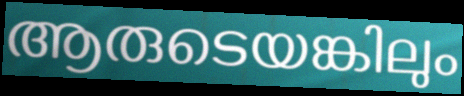
ആരുടെയങ്കിലും